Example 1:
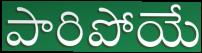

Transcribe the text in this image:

పారిపోయే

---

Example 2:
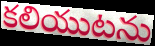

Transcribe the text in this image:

కలియుటను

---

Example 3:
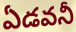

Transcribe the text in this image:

ఏడవనీ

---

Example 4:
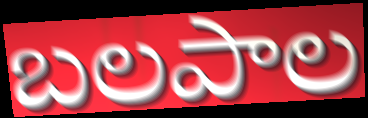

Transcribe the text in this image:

బలపాల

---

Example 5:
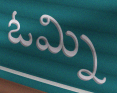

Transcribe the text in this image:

ఓమ్ని